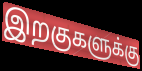
இறகுகளுக்கு